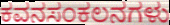
ಕವನಸಂಕಲನಗಳು